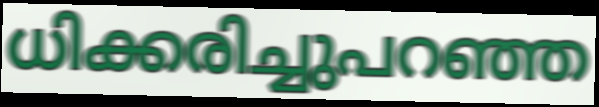
ധിക്കരിച്ചുപറഞ്ഞ